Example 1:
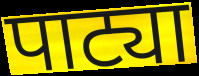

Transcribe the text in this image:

पाट्या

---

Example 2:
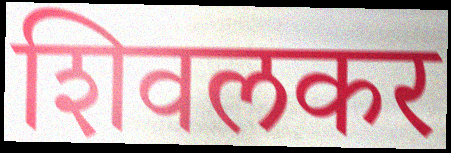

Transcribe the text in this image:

शिवलकर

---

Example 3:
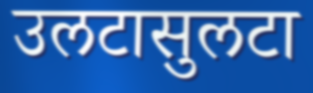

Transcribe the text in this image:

उलटासुलटा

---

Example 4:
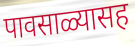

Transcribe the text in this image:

पावसाळ्यासह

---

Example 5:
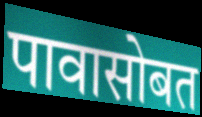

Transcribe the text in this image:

पावासोबत